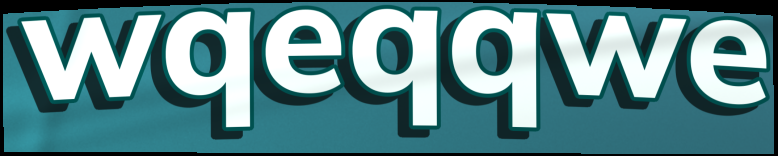
wqeqqwe